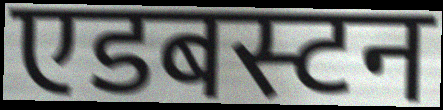
एडबस्टन